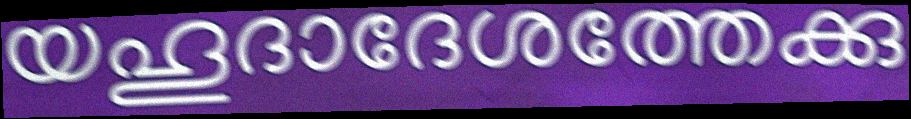
യഹൂദാദേശത്തേക്കു